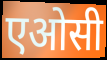
एओसी